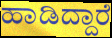
ಹಾಡಿದ್ದಾರೆ